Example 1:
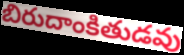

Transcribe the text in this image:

బిరుదాంకితుడవు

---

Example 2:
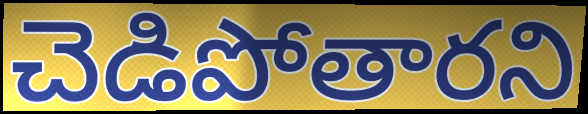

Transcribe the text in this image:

చెడిపోతారని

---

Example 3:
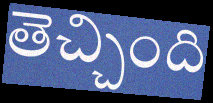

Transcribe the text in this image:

తెచ్చింది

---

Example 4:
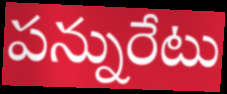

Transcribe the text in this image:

పన్నురేటు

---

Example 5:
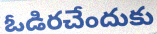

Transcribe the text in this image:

ఓడిరచేందుకు